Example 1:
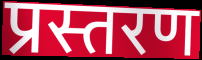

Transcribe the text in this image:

प्रस्तरण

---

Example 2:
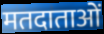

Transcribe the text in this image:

मतदाताओें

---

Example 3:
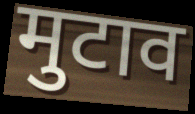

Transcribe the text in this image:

मुटाव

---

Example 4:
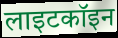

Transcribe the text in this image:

लाइटकॉइन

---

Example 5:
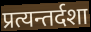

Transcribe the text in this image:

प्रत्यन्तर्दशा